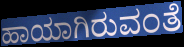
ಹಾಯಾಗಿರುವಂತೆ